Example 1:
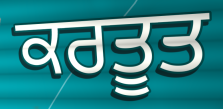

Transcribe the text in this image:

ਕਰਤੂਤ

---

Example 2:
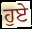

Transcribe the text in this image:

ਹੁਏ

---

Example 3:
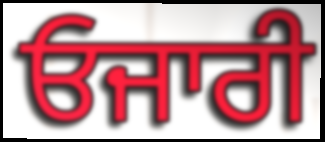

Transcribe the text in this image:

ਓਜਾਰੀ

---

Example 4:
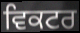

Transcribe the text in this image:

ਵਿਕਟਰ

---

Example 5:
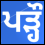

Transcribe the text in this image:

ਪੜ੍ਹੌ